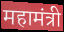
महामंत्री